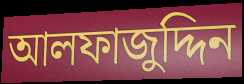
আলফাজুদ্দিন